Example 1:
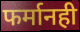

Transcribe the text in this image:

फर्मानही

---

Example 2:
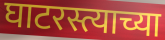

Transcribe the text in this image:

घाटरस्त्याच्या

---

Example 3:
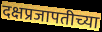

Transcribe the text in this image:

दक्षप्रजापतीच्या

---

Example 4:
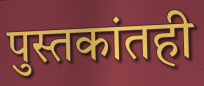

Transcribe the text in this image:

पुस्तकांतही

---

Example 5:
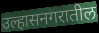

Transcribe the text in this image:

उल्हासनगरातील